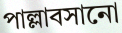
পাল্লাবসানো